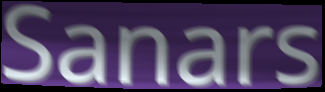
Sanars